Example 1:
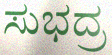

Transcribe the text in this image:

ಸುಭದ್ರ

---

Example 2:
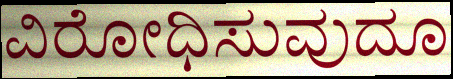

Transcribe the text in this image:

ವಿರೋಧಿಸುವುದೂ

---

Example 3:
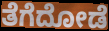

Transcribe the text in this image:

ತೆಗೆದೋಡೆ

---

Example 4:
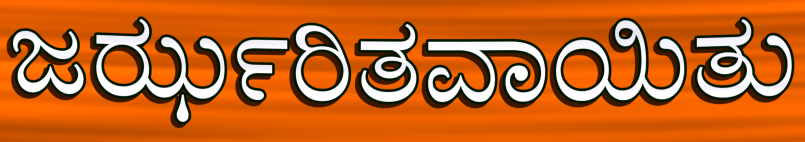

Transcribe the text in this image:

ಜರ್ಝರಿತವಾಯಿತು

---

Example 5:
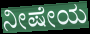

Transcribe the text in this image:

ನೀಷೇಯ